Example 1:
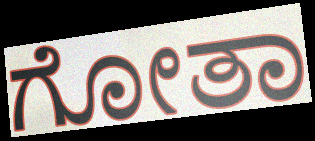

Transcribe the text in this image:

ಗೋತಾ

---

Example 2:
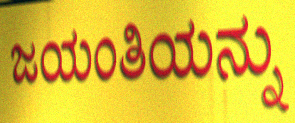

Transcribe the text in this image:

ಜಯಂತಿಯನ್ನು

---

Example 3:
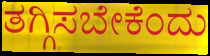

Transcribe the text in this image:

ತಗ್ಗಿಸಬೇಕೆಂದು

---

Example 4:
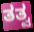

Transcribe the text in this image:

ತತ್ವ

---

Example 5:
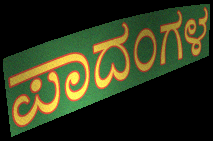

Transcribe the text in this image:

ಪಾದಂಗಳ